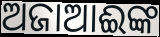
ଅଜାଆଈଙ୍କ